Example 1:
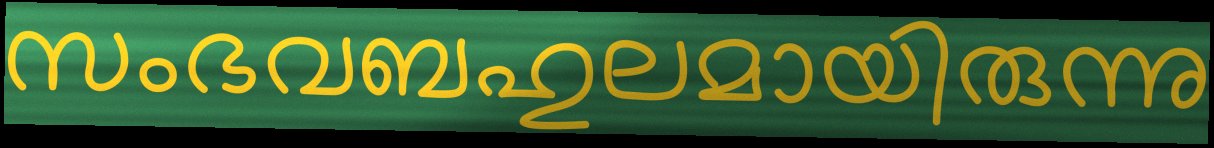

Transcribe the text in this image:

സംഭവബഹുലമായിരുന്നു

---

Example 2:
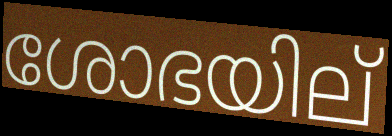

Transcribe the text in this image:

ശോഭയില്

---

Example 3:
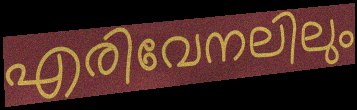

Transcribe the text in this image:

എരിവേനലിലും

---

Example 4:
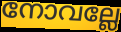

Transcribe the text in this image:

നോവല്ലേ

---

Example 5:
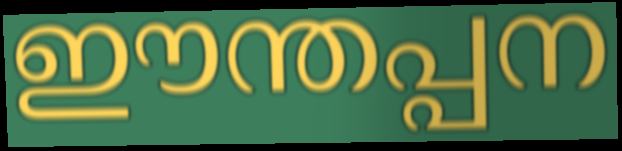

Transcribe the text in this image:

ഈന്തപ്പന